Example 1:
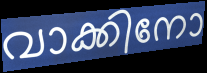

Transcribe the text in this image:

വാക്കിനോ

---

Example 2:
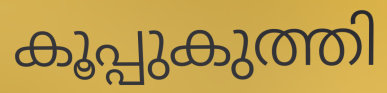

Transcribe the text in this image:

കൂപ്പുകുത്തി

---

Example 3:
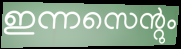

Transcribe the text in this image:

ഇന്നസെന്റും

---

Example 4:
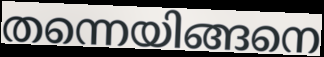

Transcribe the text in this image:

തന്നെയിങ്ങനെ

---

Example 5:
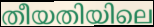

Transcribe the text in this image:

തീയതിയിലെ